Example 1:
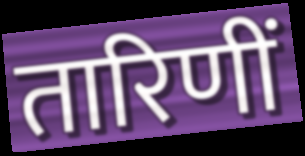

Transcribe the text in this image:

तारिणीं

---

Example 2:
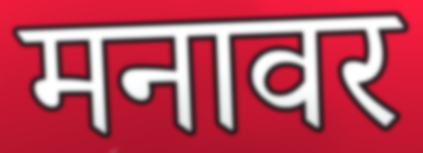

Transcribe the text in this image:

मनावर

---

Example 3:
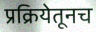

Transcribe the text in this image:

प्रक्रियेतूनच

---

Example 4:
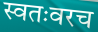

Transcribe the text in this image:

स्वतःवरच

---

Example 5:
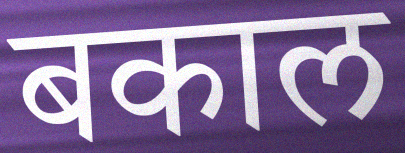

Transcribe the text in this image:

बकाल